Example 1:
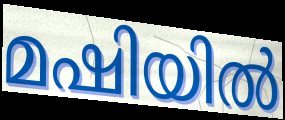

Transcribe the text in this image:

മഷിയിൽ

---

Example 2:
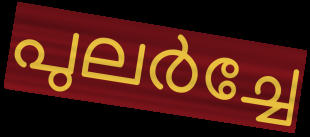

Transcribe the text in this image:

പുലർച്ചേ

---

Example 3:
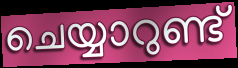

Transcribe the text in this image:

ചെയ്യാറുണ്ട്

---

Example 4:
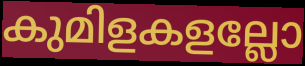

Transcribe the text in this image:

കുമിളകളല്ലോ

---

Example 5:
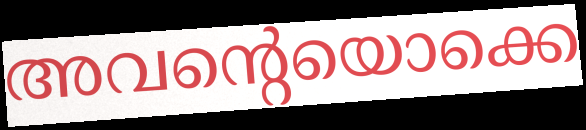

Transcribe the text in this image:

അവന്റെയൊക്കെ